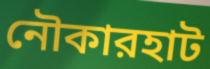
নৌকারহাট